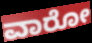
ವಾರೋ